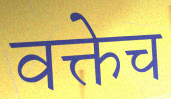
वक्तेच